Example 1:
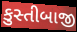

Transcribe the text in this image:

કુસ્તીબાજી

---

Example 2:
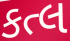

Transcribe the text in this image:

કત્લ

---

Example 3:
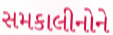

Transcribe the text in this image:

સમકાલીનોને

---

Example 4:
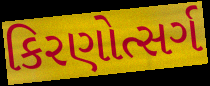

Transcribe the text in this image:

કિરણોત્સર્ગ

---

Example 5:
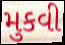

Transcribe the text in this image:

મુકવી